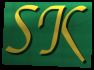
SK